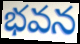
భవన